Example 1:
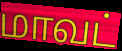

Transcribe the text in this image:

மாவட்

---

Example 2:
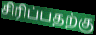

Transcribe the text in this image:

சிரிப்பதற்கு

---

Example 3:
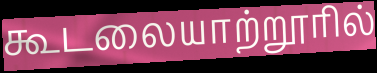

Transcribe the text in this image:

கூடலையாற்றூரில்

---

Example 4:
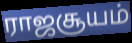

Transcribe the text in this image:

ராஜசூயம்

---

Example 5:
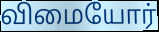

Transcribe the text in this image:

விமையோர்